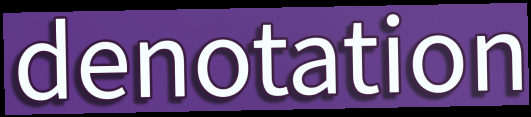
denotation